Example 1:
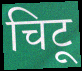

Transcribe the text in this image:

चिटू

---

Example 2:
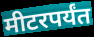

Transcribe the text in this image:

मीटरपर्यंत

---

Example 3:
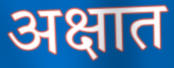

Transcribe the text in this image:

अक्षात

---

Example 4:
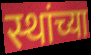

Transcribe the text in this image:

स्थांच्या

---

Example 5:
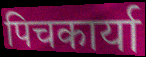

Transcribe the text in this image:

पिचकार्या